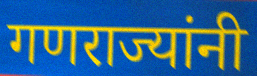
गणराज्यांनी